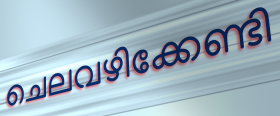
ചെലവഴിക്കേണ്ടി